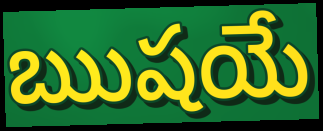
ఋషయే